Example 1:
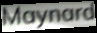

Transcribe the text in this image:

Maynard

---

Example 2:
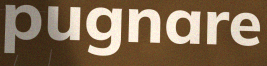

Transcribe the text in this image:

pugnare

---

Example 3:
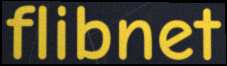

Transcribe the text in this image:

flibnet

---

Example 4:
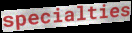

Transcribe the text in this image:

specialties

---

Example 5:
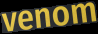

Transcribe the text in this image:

venom